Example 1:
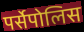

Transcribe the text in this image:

पर्सेपोलिस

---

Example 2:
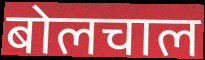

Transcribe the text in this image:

बोलचाल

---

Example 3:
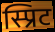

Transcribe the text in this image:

स्प्रिट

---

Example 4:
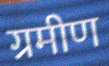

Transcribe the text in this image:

ग्रमीण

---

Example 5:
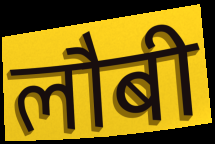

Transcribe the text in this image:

लौबी